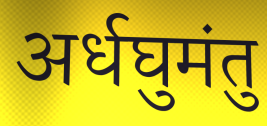
अर्धघुमंतु